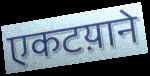
एकटय़ाने